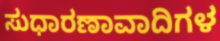
ಸುಧಾರಣಾವಾದಿಗಳ